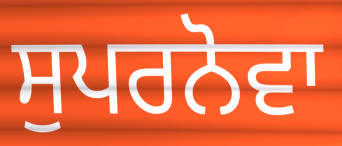
ਸੁਪਰਨੋਵਾ